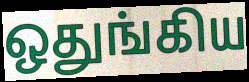
ஒதுங்கிய